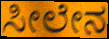
ಸೀಲೇನ